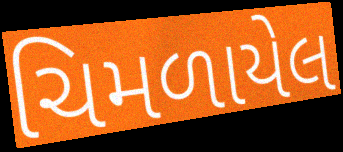
ચિમળાયેલ